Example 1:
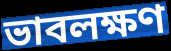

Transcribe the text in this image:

ভাবলক্ষণ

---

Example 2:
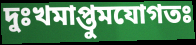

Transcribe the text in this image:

দুঃখমাপ্তুমযোগতঃ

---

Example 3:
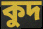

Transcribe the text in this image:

কুদ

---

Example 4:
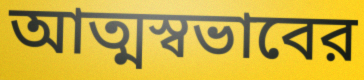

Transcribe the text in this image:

আত্মস্বভাবের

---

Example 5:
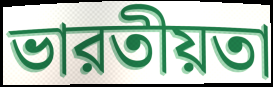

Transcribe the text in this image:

ভারতীয়তা